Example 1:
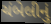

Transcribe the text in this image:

ચંબેલીનું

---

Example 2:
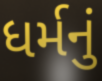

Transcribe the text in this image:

ધર્મનું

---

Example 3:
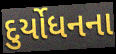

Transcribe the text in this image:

દુર્યોધનના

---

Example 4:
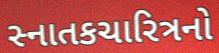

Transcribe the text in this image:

સ્નાતકચારિત્રનો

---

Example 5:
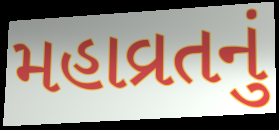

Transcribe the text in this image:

મહાવ્રતનું